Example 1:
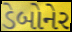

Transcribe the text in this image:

ડેબોનેર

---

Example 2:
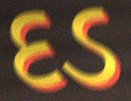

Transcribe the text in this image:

દડ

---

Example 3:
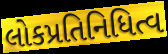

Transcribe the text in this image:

લોકપ્રતિનિધિત્વ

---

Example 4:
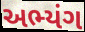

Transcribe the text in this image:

અભ્યંગ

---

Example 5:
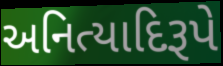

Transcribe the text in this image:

અનિત્યાદિરૂપે